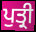
ਪੁਤ੍ਰੀ